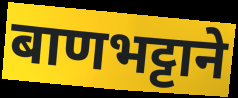
बाणभट्टाने